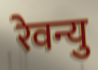
रेवन्यु